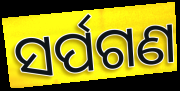
ସର୍ପଗଣ